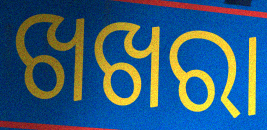
ଖଖରା